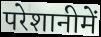
परेशानीमें